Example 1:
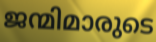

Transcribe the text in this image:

ജന്മിമാരുടെ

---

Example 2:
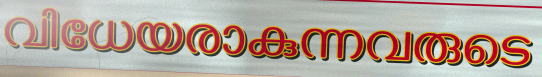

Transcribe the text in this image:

വിധേയരാകുന്നവരുടെ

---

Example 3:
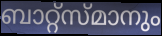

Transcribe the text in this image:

ബാറ്റ്സ്മാനും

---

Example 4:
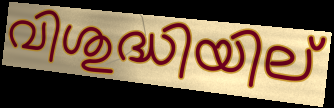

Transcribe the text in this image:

വിശുദ്ധിയില്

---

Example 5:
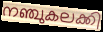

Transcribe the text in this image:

നഞ്ചുകലക്കി